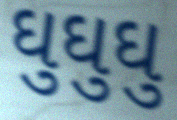
ઘુઘુઘુ